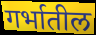
गर्भातील